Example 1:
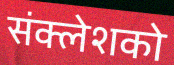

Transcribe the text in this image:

संक्लेशको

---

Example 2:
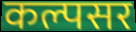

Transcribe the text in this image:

कल्पसर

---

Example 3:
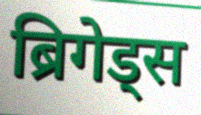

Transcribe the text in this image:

ब्रिगेड्स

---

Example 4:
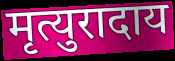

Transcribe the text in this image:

मृत्युरादाय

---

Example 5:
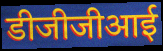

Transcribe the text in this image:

डीजीजीआई